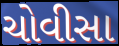
ચોવીસા